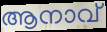
ആനാവ്